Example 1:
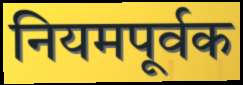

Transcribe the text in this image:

नियमपूर्वक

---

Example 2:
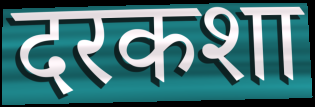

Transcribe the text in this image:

दरकशा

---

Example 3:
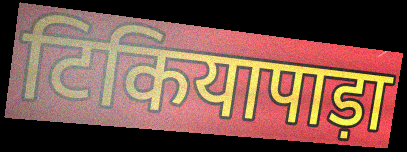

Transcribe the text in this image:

टिकियापाड़ा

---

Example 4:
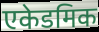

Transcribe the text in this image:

एकेडमिक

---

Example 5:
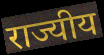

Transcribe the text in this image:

राज्‍यीय